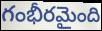
గంభీరమైంది